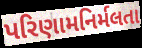
પરિણામનિર્મલતા